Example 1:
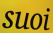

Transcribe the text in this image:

suoi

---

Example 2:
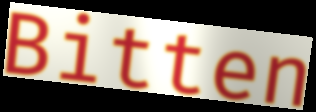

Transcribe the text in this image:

Bitten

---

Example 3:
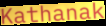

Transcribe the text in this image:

Kathanak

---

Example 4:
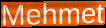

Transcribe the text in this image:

Mehmet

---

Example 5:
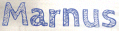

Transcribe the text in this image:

Marnus